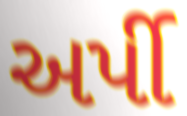
અર્પી